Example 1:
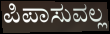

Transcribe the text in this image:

ಪಿಪಾಸುವಲ್ಲ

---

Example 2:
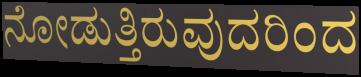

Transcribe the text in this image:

ನೋಡುತ್ತಿರುವುದರಿಂದ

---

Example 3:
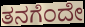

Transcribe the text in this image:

ತನಗೆಂದೇ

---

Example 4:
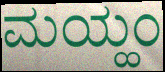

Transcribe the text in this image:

ಮಯ್ಹಂ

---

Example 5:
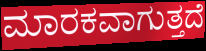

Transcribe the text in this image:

ಮಾರಕವಾಗುತ್ತದೆ